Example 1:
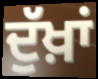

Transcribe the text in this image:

ਦੁੱਖ਼ਾਂ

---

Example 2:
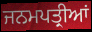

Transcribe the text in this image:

ਜਨਮਪਤ੍ਰੀਆਂ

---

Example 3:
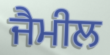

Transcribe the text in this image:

ਜੈਮੀਲ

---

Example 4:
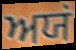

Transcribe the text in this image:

ਅਯਂ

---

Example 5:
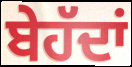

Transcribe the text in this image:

ਬੇਹੱਦਾਂ